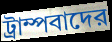
ট্রাম্পবাদের